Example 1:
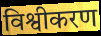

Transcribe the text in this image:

विश्वीकरण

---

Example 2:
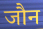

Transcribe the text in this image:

जौन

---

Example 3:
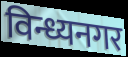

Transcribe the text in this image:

विन्ध्यनगर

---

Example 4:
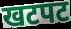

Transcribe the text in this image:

खटपट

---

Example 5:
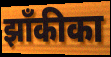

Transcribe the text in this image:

झाँकीका